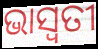
ଭାସ୍ଵତୀ